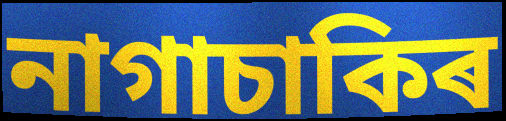
নাগাচাকিৰ